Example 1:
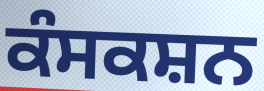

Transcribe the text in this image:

ਕੰਸਕਸ਼ਨ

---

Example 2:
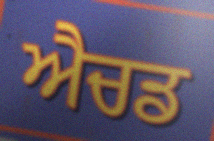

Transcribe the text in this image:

ਐਚਡ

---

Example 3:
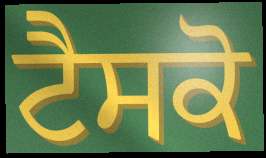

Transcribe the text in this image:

ਟੈਸਕੋ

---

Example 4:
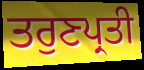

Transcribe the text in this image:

ਤਰੁਣਪ੍ਰਤੀ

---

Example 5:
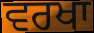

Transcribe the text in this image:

ਵਰਖਾ